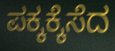
ಪಕ್ಕಕ್ಕೆಸೆದ